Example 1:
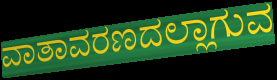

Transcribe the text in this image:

ವಾತಾವರಣದಲ್ಲಾಗುವ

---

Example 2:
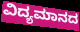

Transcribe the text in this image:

ವಿದ್ಯಮಾನದ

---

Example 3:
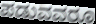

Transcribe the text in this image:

ಪಡುವವರೂ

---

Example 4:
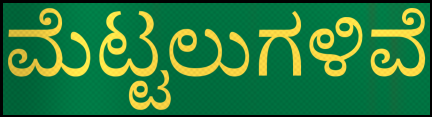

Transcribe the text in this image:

ಮೆಟ್ಟಲುಗಳಿವೆ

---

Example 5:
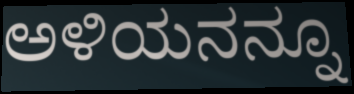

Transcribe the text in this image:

ಅಳಿಯನನ್ನೂ